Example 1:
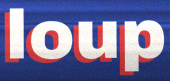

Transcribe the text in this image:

loup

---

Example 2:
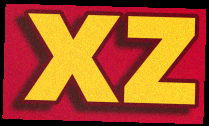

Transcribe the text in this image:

xz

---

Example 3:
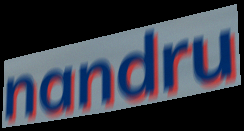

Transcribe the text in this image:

nandru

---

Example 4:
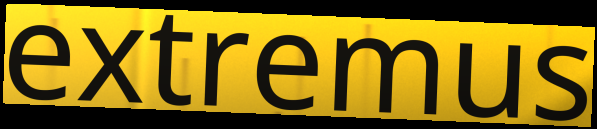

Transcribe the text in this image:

extremus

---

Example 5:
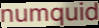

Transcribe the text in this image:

numquid